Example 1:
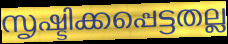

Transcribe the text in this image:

സൃഷ്ടിക്കപ്പെട്ടതല്ല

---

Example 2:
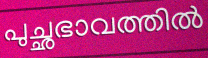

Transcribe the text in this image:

പുച്ഛഭാവത്തിൽ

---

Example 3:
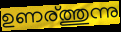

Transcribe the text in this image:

ഉണര്ത്തുന്നു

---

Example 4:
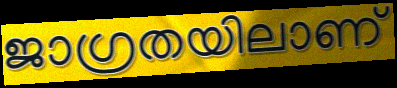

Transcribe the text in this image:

ജാഗ്രതയിലാണ്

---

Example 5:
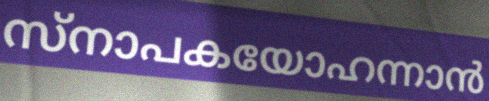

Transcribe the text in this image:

സ്നാപകയോഹന്നാൻ